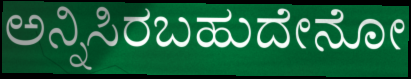
ಅನ್ನಿಸಿರಬಹುದೇನೋ